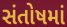
સંતોષમાં